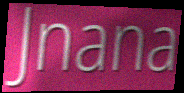
Jnana